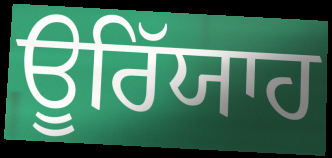
ਊਰਿੱਯਾਹ